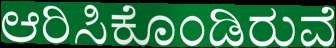
ಆರಿಸಿಕೊಂಡಿರುವೆ